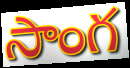
సాంగ